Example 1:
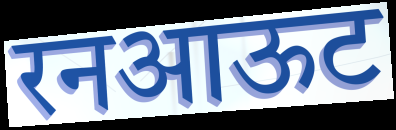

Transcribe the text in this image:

रनआऊट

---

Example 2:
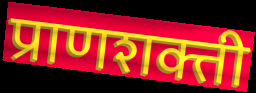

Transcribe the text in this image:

प्राणशक्ती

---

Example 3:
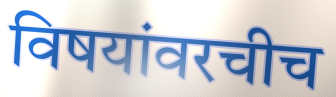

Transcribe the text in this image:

विषयांवरचीच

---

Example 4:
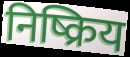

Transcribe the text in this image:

निष्क्रिय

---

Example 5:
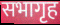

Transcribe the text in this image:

सभागृह